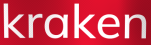
kraken